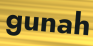
gunah